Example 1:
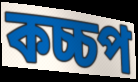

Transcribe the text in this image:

কচ্চপ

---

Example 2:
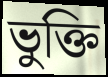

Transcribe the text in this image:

ভুক্তি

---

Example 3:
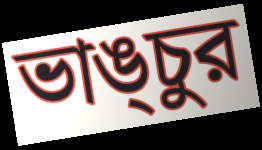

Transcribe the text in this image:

ভাঙ্চুর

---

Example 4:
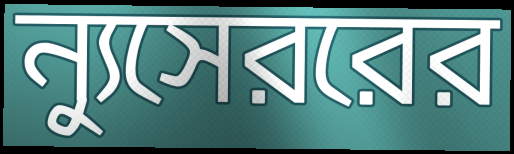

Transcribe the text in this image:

ন্যুসেররের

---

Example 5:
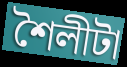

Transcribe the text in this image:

শৈলীটা